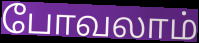
போவலாம்